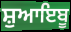
ਸ਼ੁਆਇਬੂ